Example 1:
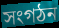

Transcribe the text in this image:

সংগঠন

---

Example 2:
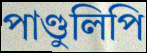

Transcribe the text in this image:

পাণ্ডুলিপি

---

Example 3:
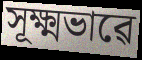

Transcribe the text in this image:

সূক্ষ্মভাৱে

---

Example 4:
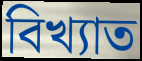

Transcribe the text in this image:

বিখ্যাত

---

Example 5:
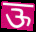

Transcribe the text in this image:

ক্ত